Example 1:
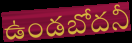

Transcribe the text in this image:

ఉండబోదనీ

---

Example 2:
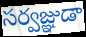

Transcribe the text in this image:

సర్వజ్ఞుడా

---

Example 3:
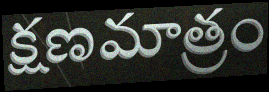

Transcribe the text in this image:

క్షణమాత్రం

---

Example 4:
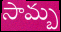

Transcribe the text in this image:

సామ్బ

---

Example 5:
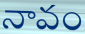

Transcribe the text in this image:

నావం